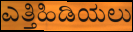
ಎತ್ತಿಹಿಡಿಯಲು